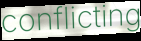
conflicting